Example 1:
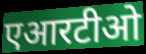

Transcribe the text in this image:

एआरटीओ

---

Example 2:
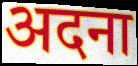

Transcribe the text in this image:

अदना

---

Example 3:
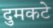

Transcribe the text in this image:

दुमकटे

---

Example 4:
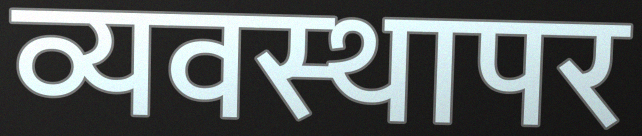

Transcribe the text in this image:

व्यवस्थापर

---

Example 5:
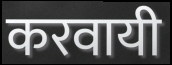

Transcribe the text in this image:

करवायी